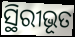
ସ୍ଥିରୀଭୂତ